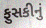
ફુસકીનું